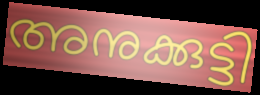
അനുക്കുട്ടി